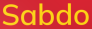
Sabdo